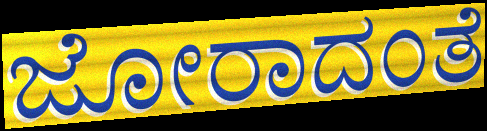
ಜೋರಾದಂತೆ